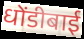
धोंडीबाई